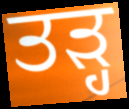
ਤੜ੍ਹ